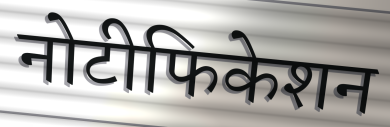
नोटीफिकेशन